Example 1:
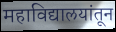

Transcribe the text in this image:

महाविद्यालयांतून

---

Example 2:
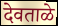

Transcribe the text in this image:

देवताळे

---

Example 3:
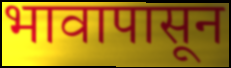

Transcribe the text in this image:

भावापासून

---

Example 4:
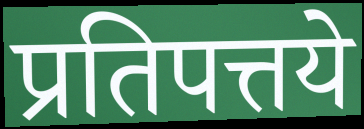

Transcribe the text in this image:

प्रतिपत्तये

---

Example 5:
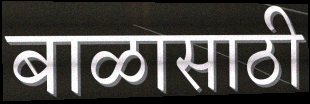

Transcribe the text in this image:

बाळासाठी